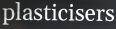
plasticisers